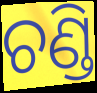
ଚଣ୍ଡି